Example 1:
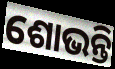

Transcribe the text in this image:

ଶୋଭନ୍ତି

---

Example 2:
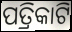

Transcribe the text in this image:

ପତ୍ରିକାଟି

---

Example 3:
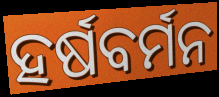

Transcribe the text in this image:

ହର୍ଷବର୍ମନ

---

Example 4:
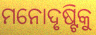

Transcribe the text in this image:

ମନୋଦୃଷ୍ଟିକୁ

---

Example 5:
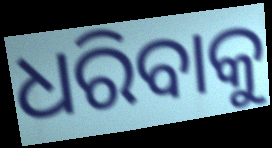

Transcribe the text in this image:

ଧରିବାକୁ